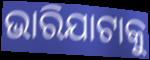
ଭାରିଯାଟାକୁ